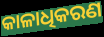
କାଳାଧିକରଣ